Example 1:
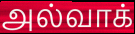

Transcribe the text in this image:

அல்வாக்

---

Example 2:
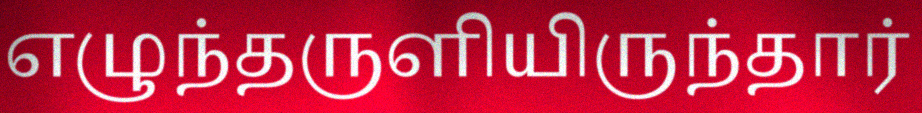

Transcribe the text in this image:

எழுந்தருளியிருந்தார்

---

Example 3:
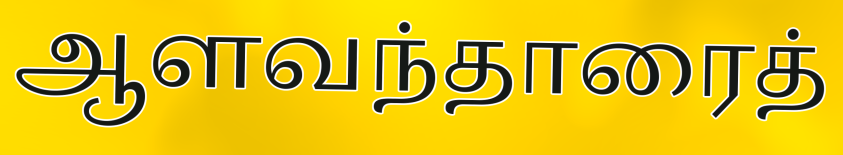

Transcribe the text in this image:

ஆளவந்தாரைத்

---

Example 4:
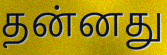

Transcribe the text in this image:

தன்னது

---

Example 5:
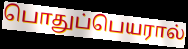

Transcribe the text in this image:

பொதுப்பெயரால்